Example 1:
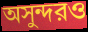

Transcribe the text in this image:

অসুন্দরও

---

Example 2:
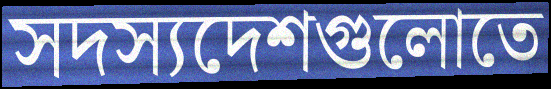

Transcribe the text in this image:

সদস্যদেশগুলোতে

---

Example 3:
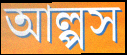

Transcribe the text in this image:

আল্পস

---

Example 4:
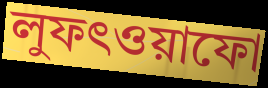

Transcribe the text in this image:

লুফৎওয়াফো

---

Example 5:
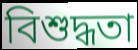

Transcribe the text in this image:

বিশুদ্ধতা